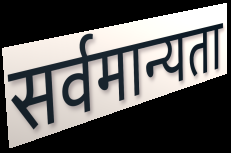
सर्वमान्यता